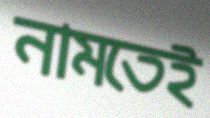
নামতেই